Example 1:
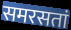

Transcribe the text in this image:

समरसतां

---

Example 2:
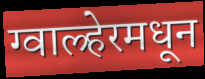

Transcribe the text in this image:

ग्वाल्हेरमधून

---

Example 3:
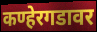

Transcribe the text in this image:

कण्हेरगडावर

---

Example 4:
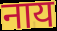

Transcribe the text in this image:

नाय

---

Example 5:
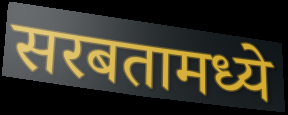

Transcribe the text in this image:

सरबतामध्ये